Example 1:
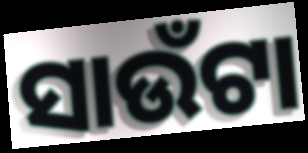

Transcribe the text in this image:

ସାଉଁଟା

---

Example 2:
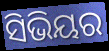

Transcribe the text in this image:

ସିଭିୟର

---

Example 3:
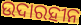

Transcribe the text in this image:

ଉଦାରହୀନ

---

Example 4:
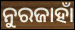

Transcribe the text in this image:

ନୁରଜାହାଁ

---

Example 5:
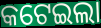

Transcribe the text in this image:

କଟେଇଲା